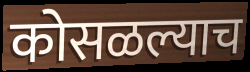
कोसळल्याच